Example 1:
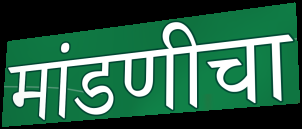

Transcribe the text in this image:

मांडणीचा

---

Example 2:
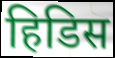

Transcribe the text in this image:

हिडिस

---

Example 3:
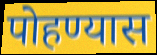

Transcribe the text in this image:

पोहण्यास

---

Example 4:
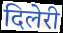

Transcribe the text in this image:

दिलेरी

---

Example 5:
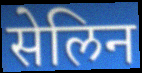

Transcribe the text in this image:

सेलिन